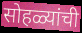
सोहळ्यांची